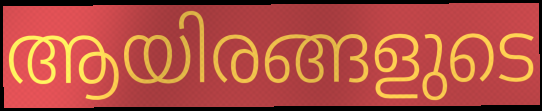
ആയിരങ്ങളുടെ